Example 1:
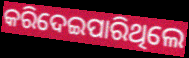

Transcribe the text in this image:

କରିଦେଇପାରିଥିଲେ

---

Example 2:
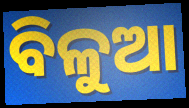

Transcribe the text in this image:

ବିଳୁଆ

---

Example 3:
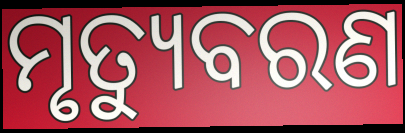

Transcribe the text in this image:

ମୃତ୍ୟୁବରଣ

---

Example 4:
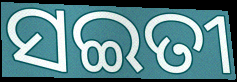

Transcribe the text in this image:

ସଇତୀ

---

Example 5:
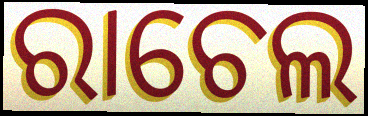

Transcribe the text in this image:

ରାଚେଲ